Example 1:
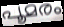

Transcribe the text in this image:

പൂമരം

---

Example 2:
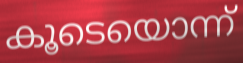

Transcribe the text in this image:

കൂടെയൊന്ന്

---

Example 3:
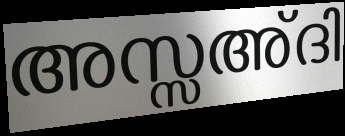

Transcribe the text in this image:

അസ്സഅ്ദി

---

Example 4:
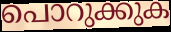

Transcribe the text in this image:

പൊറുക്കുക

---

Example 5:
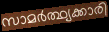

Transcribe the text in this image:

സാമർത്ഥ്യക്കാരി